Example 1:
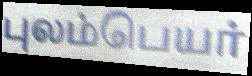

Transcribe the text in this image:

புலம்பெயர்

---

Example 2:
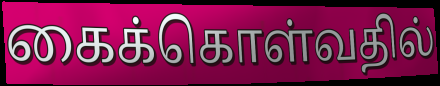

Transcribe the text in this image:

கைக்கொள்வதில்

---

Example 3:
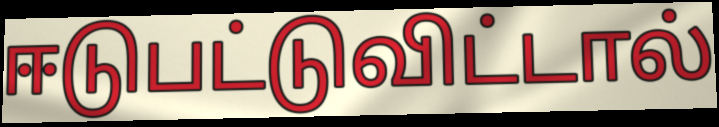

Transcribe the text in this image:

ஈடுபட்டுவிட்டால்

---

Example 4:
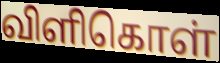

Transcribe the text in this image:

விளிகொள்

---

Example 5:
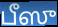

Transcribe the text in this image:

பீஸு